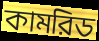
কামরিড